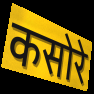
कसोरे